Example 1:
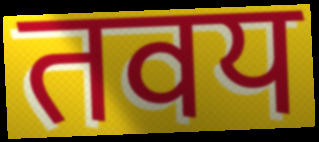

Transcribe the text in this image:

तवय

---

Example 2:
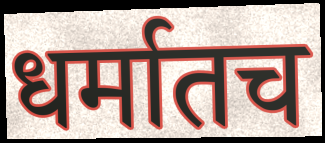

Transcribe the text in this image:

धर्मातच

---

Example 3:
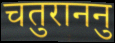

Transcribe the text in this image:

चतुराननु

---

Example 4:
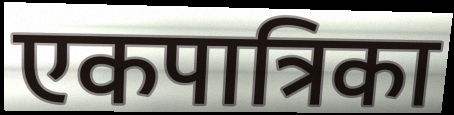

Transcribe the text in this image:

एकपात्रिका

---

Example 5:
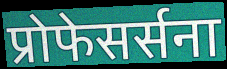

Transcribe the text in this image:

प्रोफेसर्सना